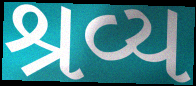
શ્રવ્ય